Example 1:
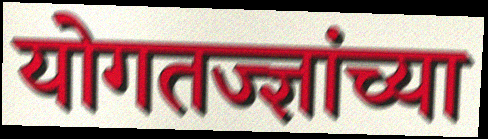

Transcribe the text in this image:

योगतज्ज्ञांच्या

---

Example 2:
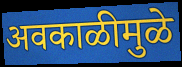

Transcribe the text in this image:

अवकाळीमुळे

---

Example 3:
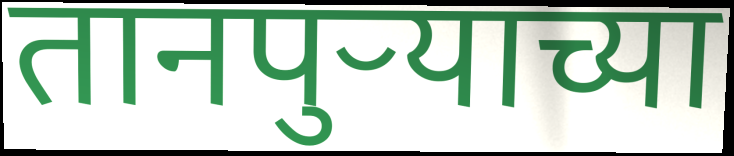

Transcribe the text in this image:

तानपुऱ्याच्या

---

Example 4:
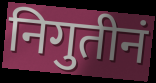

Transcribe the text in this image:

निगुतीनं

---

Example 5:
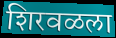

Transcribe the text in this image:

शिरवळला